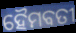
ହୈମବତୀ